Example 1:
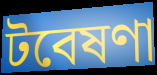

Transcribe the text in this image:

টবেষণা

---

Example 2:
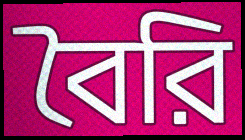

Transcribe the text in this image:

বৈরি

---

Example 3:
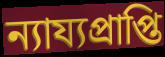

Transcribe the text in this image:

ন্যায্যপ্রাপ্তি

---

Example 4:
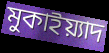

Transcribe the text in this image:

মুকাইয়্যাদ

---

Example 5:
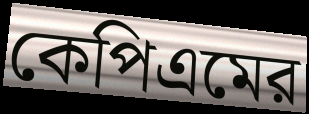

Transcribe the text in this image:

কেপিএমের